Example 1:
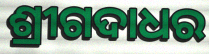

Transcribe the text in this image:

ଶ୍ରୀଗଦାଧର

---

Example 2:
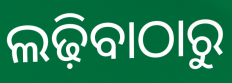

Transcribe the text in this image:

ଲଢ଼ିବାଠାରୁ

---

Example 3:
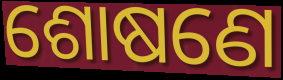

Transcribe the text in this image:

ଶୋଷଣେ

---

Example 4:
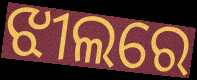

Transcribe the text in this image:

ଝୀଲରେ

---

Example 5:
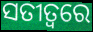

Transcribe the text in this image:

ସତୀତ୍ୱରେ